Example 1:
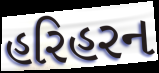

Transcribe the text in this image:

હરિહરન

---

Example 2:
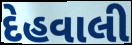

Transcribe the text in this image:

દેહવાલી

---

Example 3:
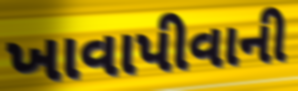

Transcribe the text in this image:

ખાવાપીવાની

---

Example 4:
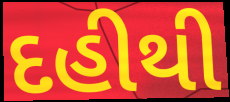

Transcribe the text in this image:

દહીથી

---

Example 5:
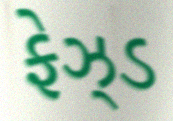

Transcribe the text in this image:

ફેઝ્ડ